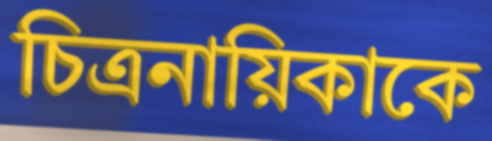
চিত্রনায়িকাকে